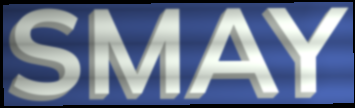
SMAY